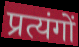
प्रत्यंगों